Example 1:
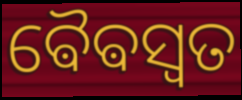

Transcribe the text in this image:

ଵୈଵସ୍ୱତ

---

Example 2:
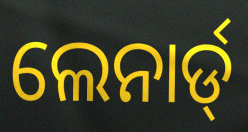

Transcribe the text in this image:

ଲେନାର୍ଡ୍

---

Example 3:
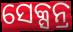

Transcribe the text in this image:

ସେକ୍ସନ୍ର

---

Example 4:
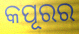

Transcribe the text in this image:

କପୂରର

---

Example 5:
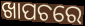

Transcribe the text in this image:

ଖାପଚରେ